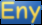
Eny